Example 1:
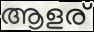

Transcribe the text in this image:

ആളര്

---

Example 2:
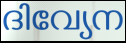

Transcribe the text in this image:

ദിവ്യേന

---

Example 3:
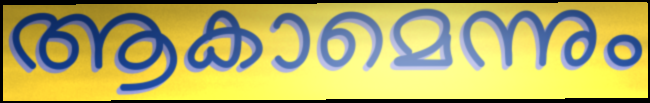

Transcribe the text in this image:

ആകാമെന്നും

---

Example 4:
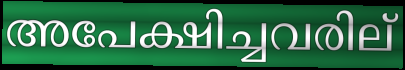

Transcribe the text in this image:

അപേക്ഷിച്ചവരില്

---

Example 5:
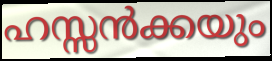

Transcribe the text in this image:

ഹസ്സൻക്കയും